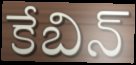
కేబిన్